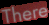
There